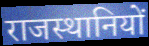
राजस्थानियों